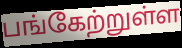
பங்கேற்றுள்ள